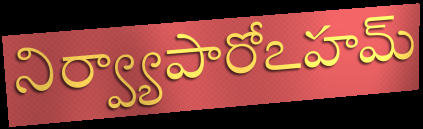
నిర్వ్యాపారోఽహమ్